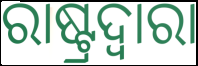
ରାଷ୍ଟ୍ରଦ୍ୱାରା